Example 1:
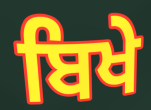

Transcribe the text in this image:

ਬਿਖੇ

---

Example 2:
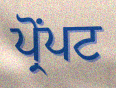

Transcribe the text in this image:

ਪ੍ਰੋਂਪਟ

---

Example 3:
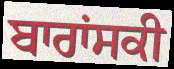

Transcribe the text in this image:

ਬਾਰਾਂਸਕੀ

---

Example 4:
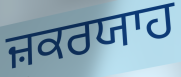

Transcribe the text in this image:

ਜ਼ਕਰਯਾਹ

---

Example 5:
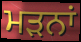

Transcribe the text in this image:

ਮੜਨਾਂ